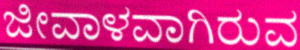
ಜೀವಾಳವಾಗಿರುವ